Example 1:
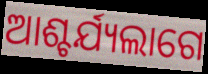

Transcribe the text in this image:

ଆଶ୍ଚର୍ଯ୍ୟଲାଗେ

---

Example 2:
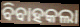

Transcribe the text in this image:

ବିବାହକଲା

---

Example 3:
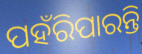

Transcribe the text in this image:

ପହଁରିପାରନ୍ତି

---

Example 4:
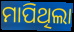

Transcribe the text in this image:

ମାପିଥିଲା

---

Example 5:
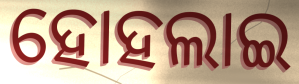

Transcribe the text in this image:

ହୋହଲାଇ